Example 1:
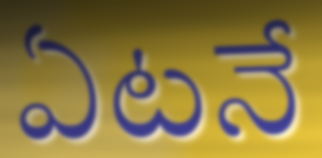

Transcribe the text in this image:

ఏటనే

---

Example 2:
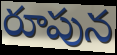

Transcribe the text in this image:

రూపున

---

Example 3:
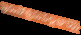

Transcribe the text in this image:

పురుషోత్తమవల్లభాయై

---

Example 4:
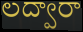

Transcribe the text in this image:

లద్వారా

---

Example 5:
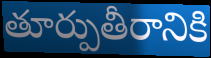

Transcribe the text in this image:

తూర్పుతీరానికి